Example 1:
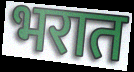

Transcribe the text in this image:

भरात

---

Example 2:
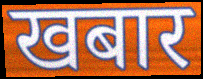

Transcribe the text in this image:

खबार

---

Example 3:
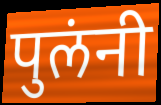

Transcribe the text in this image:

पुलंनी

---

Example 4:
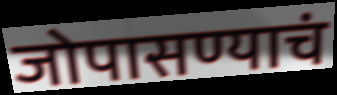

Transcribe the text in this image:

जोपासण्याचं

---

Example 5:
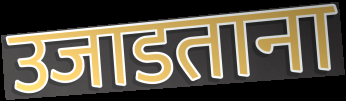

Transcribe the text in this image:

उजाडताना